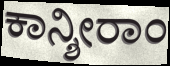
ಕಾನ್ಶೀರಾಂ